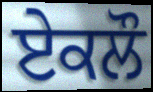
ਏਕਲੌ